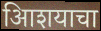
आिशयाचा